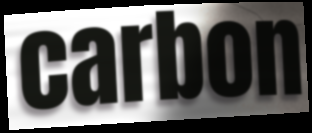
carbon